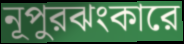
নূপুরঝংকারে